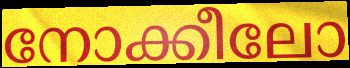
നോക്കീലോ